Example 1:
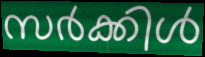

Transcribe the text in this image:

സർക്കിൾ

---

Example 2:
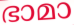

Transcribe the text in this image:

ഭാമാ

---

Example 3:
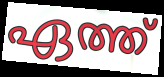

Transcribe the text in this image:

ഏത്ത്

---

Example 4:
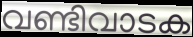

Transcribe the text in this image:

വണ്ടിവാടക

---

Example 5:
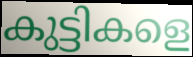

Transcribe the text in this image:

കുട്ടികളെ